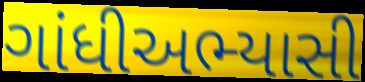
ગાંધીઅભ્યાસી